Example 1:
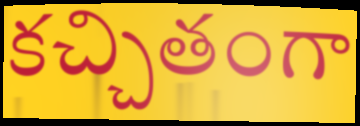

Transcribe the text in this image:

కచ్చితంగా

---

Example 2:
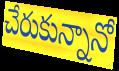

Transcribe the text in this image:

చేరుకున్నానో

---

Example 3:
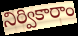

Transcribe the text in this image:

నిర్వికారాం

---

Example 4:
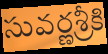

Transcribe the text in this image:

సువర్ణశ్రీకి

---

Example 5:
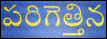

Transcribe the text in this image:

పరిగెత్తిన